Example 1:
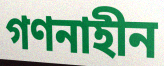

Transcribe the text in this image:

গণনাহীন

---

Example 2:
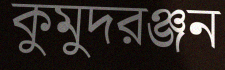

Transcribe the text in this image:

কুমুদরঞ্জন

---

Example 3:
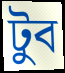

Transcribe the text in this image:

টুব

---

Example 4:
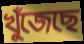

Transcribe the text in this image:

খুঁজেছে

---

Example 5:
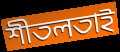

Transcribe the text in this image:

শীতলতাই